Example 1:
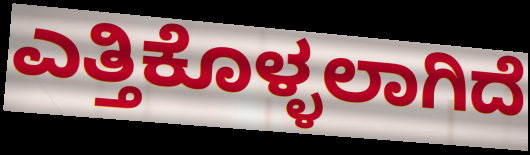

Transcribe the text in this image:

ಎತ್ತಿಕೊಳ್ಳಲಾಗಿದೆ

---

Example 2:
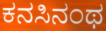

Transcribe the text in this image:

ಕನಸಿನಂಥ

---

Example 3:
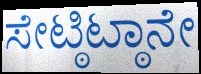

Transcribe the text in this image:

ಸೇಟ್ಠಿಟ್ಠಾನೇ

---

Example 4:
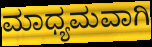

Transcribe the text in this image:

ಮಾಧ್ಯಮವಾಗಿ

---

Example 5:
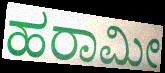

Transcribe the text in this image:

ಹರಾಮೀ